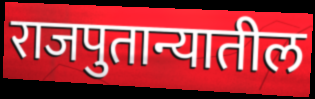
राजपुतान्यातील